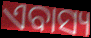
ଏବାସ୍ୟ